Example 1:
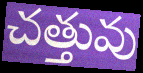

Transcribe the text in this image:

చత్తువు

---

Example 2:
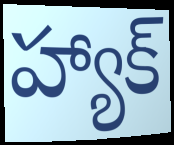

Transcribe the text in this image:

హ్యాక్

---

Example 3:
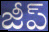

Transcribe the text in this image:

జీప్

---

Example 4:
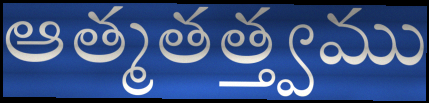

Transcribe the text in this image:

ఆత్మతత్త్వము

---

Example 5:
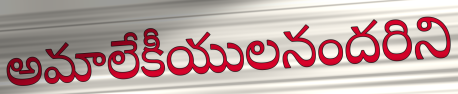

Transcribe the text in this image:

అమాలేకీయులనందరిని